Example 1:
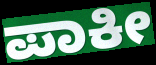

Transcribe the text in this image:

ಪಾಕೀ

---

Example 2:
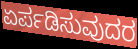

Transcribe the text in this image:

ಏರ್ಪಡಿಸುವುದರ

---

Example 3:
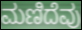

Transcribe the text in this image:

ಮಣಿದೆವು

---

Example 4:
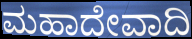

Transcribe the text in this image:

ಮಹಾದೇವಾದಿ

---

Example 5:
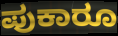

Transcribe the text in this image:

ಪುಕಾರೂ